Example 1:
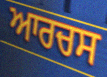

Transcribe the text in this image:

ਆਰਚਸ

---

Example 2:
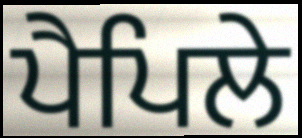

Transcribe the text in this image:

ਪੈਪਿਲੇ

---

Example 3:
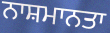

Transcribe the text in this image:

ਨਾਸ਼ਮਾਨਤਾ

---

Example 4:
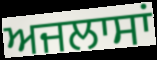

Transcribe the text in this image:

ਅਜਲਾਸਾਂ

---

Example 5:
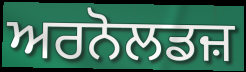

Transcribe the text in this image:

ਅਰਨੋਲਡਜ਼